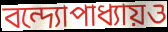
বন্দ্যোপাধ্যায়ও